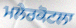
ਮਲੇਰਕੋਟਲਾ